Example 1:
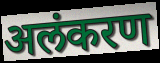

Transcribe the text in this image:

अलंकरण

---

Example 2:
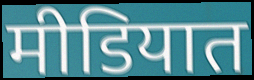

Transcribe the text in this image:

मीडियात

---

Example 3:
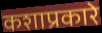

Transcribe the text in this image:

कशाप्रकारे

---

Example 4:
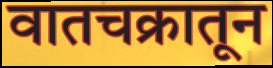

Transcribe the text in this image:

वातचक्रातून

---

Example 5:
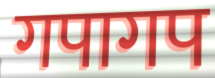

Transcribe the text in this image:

गपागप